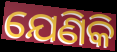
ଯେଣିକି